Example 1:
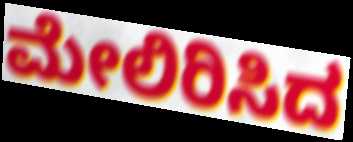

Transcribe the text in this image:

ಮೇಲಿರಿಸಿದ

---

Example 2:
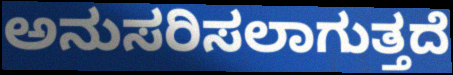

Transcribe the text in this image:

ಅನುಸರಿಸಲಾಗುತ್ತದೆ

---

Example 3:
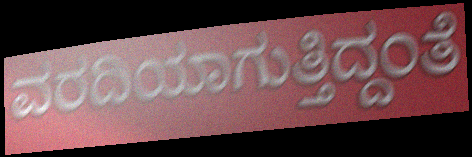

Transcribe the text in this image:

ವರದಿಯಾಗುತ್ತಿದ್ದಂತೆ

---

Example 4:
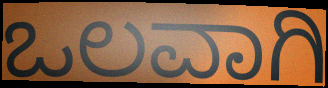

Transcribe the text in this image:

ಒಲವಾಗಿ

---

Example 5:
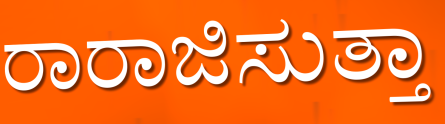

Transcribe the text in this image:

ರಾರಾಜಿಸುತ್ತಾ